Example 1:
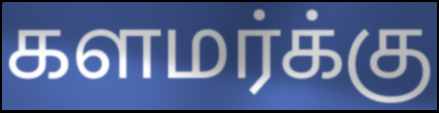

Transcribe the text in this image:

களமர்க்கு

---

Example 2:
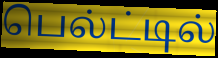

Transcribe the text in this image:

பெல்ட்டில்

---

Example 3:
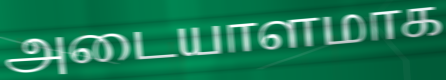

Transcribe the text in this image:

அடையாளமாக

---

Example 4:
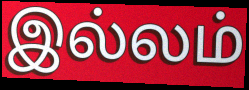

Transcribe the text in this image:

இல்லம்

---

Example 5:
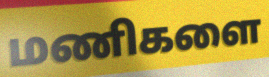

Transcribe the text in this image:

மணிகளை